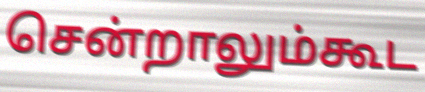
சென்றாலும்கூட